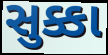
સુક્કા